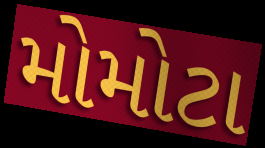
મોમોટા